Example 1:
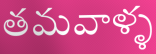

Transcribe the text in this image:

తమవాళ్ళ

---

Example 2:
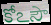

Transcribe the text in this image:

కోఽసౌ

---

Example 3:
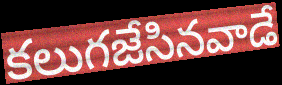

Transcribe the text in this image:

కలుగజేసినవాడే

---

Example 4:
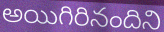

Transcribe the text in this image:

అయిగిరినందిని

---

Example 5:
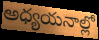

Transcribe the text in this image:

అధ్యయనాల్లో